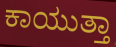
ಕಾಯುತ್ತಾ